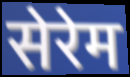
सेरेम